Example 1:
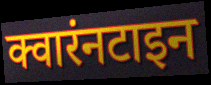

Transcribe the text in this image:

क्वारंनटाइन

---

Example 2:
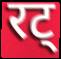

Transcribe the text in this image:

रट्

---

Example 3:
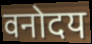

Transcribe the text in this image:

वनोदय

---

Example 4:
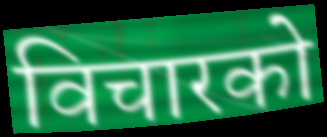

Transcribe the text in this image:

विचारको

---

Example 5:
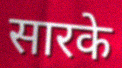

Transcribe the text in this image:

सारके